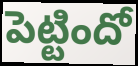
పెట్టిందో